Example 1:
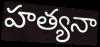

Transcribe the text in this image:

హత్యనా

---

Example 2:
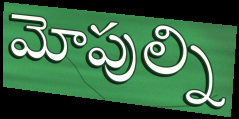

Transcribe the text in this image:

మోపుల్ని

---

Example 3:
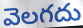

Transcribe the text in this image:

వెలగదు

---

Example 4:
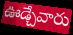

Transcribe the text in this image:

ఊడ్చేవారు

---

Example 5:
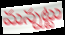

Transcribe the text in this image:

మన్నట్టు